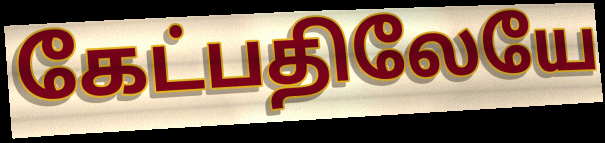
கேட்பதிலேயே